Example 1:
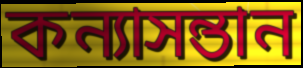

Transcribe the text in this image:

কন্যাসন্তান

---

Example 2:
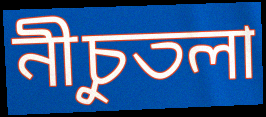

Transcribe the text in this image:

নীচুতলা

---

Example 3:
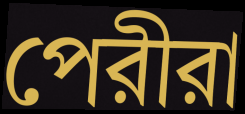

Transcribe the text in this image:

পেরীরা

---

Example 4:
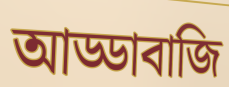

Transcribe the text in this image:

আড্ডাবাজি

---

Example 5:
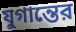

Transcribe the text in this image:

যুগান্তের